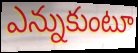
ఎన్నుకుంటూ